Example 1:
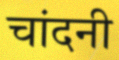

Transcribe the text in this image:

चांदनी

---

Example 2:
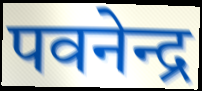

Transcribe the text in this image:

पवनेन्द्र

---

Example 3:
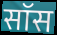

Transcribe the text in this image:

सॉस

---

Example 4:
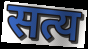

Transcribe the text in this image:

सत्य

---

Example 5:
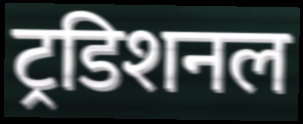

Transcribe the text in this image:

ट्रडिशनल